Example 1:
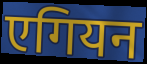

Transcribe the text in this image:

एगियन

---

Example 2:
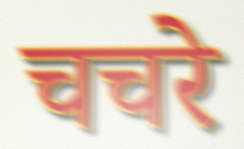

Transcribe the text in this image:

चचरे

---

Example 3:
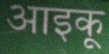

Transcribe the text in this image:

आइकू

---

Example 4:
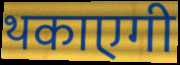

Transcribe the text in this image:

थकाएगी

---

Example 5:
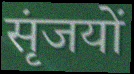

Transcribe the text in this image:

सृंजयों